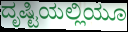
ದೃಷ್ಟಿಯಲ್ಲಿಯೂ